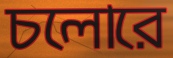
চলোরে